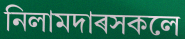
নিলামদাৰসকলে